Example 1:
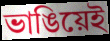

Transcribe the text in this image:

ভাঙিয়েই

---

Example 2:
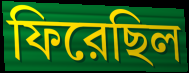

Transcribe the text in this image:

ফিরেছিল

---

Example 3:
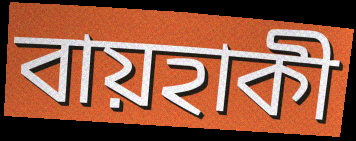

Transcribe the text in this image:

বায়হাকী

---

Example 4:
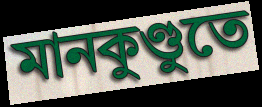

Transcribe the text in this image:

মানকুণ্ডুতে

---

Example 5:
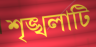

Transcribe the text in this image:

শৃঙ্খলাটি